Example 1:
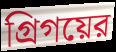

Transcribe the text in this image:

গ্রিগয়ের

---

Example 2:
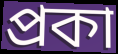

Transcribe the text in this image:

প্রকা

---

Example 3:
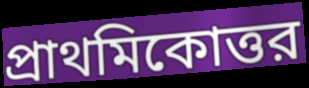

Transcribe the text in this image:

প্রাথমিকোত্তর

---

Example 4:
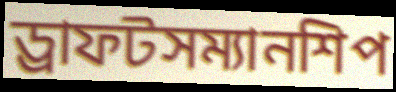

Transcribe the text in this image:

ড্রাফটসম্যানশিপ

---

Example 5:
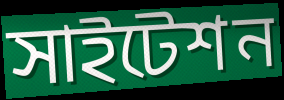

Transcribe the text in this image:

সাইটেশন